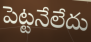
పెట్టనేలేదు